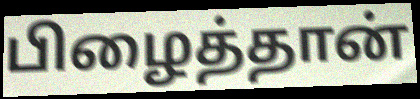
பிழைத்தான்